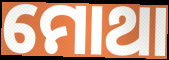
ମୋଥା